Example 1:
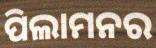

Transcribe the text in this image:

ପିଲାମନର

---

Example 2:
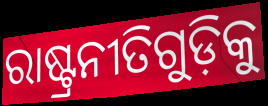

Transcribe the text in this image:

ରାଷ୍ଟ୍ରନୀତିଗୁଡ଼ିକୁ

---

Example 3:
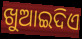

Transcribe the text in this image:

ଖୁଆଇଦିଏ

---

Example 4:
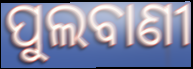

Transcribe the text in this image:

ପୁଲବାଣୀ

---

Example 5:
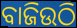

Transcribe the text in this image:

ବାଜିଉଠି